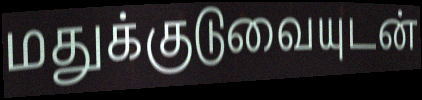
மதுக்குடுவையுடன்